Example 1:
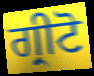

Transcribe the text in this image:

ਗ੍ਰੀਟੋ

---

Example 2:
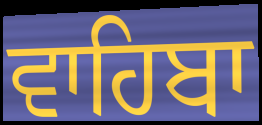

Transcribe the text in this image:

ਵਾਹਿਬਾ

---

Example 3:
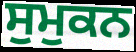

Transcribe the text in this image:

ਸੁਮੁਕਨ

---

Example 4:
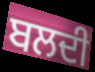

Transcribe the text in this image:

ਬਲਦੀ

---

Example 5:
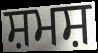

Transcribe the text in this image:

ਸ਼ਮਸ਼